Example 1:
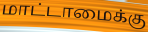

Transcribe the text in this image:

மாட்டாமைக்கு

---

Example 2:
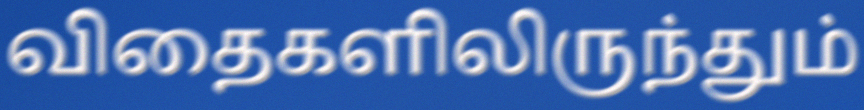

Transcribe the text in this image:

விதைகளிலிருந்தும்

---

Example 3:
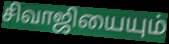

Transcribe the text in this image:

சிவாஜியையும்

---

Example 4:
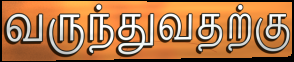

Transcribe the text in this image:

வருந்துவதற்கு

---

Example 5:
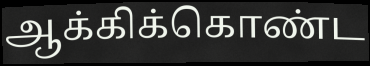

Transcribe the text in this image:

ஆக்கிக்கொண்ட